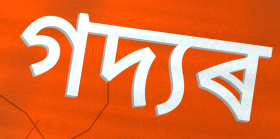
গদ্যৰ